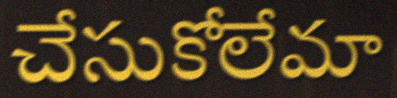
చేసుకోలేమా